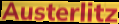
Austerlitz